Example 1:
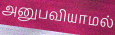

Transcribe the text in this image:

அனுபவியாமல்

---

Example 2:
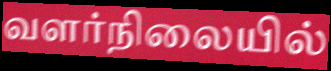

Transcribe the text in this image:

வளர்நிலையில்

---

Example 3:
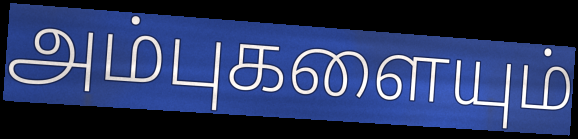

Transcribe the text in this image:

அம்புகளையும்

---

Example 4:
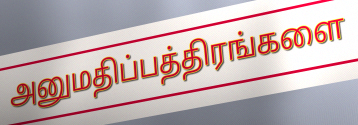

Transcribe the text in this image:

அனுமதிப்பத்திரங்களை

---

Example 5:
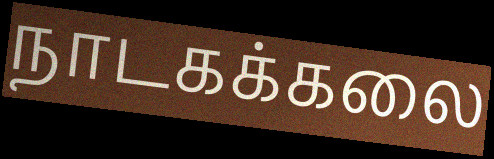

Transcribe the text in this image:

நாடகக்கலை